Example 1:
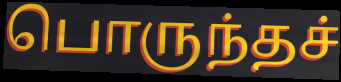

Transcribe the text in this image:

பொருந்தச்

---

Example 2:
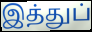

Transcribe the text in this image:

இத்துப்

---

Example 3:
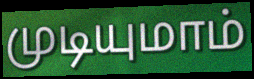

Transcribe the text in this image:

முடியுமாம்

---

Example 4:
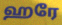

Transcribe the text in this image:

ஹரே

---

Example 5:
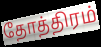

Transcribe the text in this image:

தோத்திரம்